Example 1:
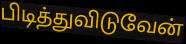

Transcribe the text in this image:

பிடித்துவிடுவேன்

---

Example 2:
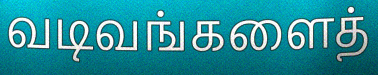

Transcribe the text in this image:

வடிவங்களைத்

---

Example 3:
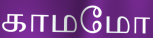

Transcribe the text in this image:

காமமோ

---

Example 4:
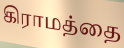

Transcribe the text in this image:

கிராமத்தை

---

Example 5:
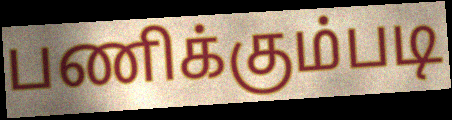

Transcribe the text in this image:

பணிக்கும்படி